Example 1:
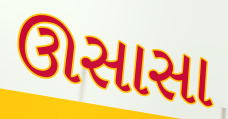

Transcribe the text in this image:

ઊસાસા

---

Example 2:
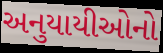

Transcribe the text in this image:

અનુયાયીઓનો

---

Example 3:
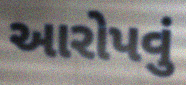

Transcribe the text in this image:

આરોપવું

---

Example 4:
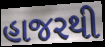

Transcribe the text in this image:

હાજરથી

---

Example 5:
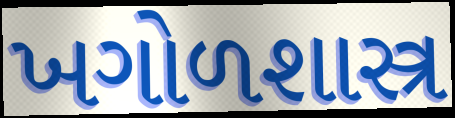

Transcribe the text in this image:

ખગોળશાસ્ત્ર